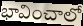
భావించాలో